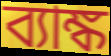
ব্যাঙ্ক